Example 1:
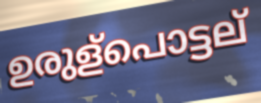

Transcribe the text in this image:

ഉരുള്പൊട്ടല്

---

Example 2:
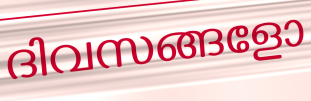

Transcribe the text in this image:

ദിവസങ്ങളോ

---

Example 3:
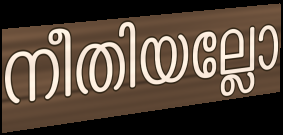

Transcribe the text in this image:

നീതിയല്ലോ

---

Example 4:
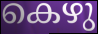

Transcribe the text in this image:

കെഴു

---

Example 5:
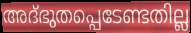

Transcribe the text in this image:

അദ്ഭുതപ്പെടേണ്ടതില്ല